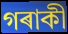
গৰাকী